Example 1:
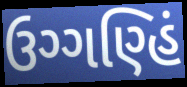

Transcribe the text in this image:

ઉગ્ગણ્હિં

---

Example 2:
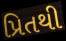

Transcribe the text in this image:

પ્રિતથી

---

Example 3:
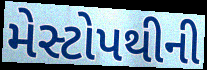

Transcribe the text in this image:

મેસ્ટોપથીની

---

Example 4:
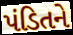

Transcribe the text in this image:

પંડિતને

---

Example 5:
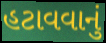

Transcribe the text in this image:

હટાવવાનું